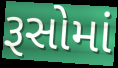
રૂસોમાં